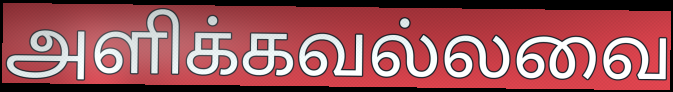
அளிக்கவல்லவை